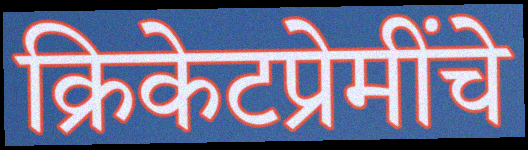
क्रिकेटप्रेमींचे